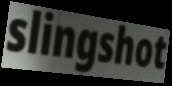
slingshot